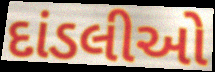
દાંડલીઓ